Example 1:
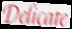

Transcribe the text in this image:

Delicate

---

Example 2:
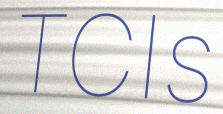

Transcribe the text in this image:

TCIs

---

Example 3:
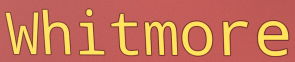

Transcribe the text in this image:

Whitmore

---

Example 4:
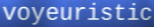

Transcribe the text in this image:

voyeuristic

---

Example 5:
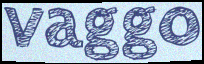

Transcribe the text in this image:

vaggo